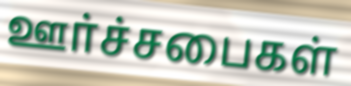
ஊர்ச்சபைகள்